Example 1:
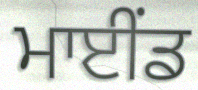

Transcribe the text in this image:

ਮਾਈਂਡ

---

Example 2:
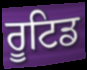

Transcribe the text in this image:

ਰੂਟਿਡ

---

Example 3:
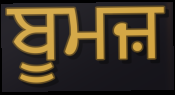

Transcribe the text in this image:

ਬੂਮਜ਼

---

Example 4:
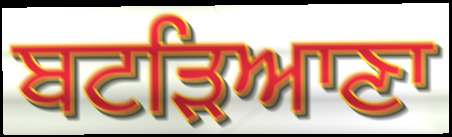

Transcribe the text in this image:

ਬਟੜਿਆਣਾ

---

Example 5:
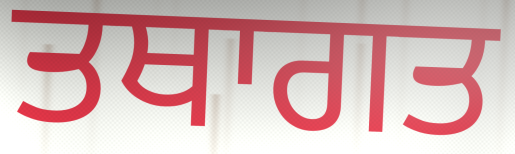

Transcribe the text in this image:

ਤਥਾਗਤ